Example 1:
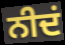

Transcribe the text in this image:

ਨੀਦਂ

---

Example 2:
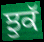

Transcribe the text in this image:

ਝੁਕੱ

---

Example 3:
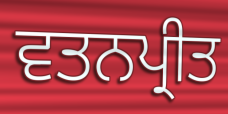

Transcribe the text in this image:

ਵਤਨਪ੍ਰੀਤ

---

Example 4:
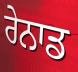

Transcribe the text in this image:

ਰੇਨਾਡ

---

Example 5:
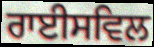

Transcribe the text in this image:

ਰਾਈਸਵਿਲ